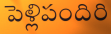
పెళ్లిపందిరి